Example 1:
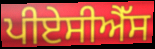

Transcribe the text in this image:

ਪੀਏਸੀਐੱਸ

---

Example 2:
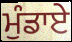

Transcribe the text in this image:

ਮੁੰਡਾਏ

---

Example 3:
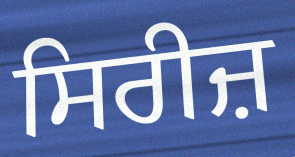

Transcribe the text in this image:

ਸਿਰੀਜ਼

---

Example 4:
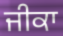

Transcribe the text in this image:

ਜੀਕਾ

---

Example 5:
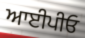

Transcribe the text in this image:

ਆਈਪੀਓ